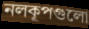
নলকূপগুলো